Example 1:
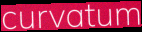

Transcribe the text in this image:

curvatum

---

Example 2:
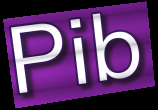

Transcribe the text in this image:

Pib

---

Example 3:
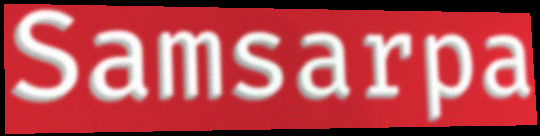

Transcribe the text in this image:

Samsarpa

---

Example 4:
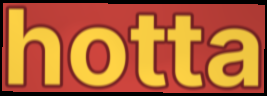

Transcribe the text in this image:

hotta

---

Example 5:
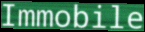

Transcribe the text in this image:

Immobile